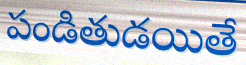
పండితుడయితే